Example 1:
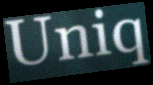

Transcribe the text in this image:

Uniq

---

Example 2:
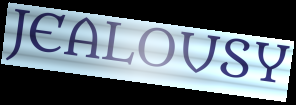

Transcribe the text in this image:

JEALOUSY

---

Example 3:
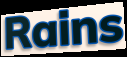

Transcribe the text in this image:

Rains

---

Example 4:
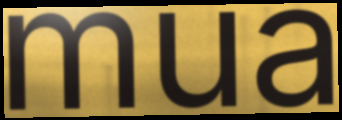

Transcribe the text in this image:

mua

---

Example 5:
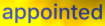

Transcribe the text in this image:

appointed